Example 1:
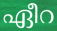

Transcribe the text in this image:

ഏീറ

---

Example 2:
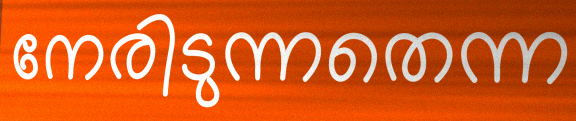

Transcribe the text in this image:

നേരിടുന്നതെന്ന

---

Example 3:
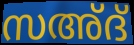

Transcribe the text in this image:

സഅ്ദ്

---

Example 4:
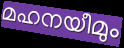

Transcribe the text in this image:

മഹനയീമും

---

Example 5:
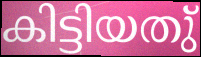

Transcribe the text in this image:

കിട്ടിയതു്